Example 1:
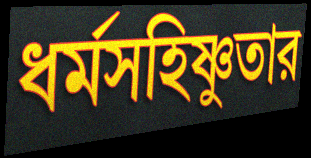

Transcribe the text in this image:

ধর্মসহিষ্ণুতার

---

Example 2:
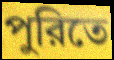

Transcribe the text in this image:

পুরিতে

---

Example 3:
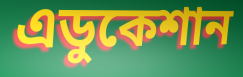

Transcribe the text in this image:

এডুকেশান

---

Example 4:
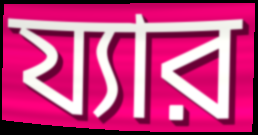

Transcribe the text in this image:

য্যার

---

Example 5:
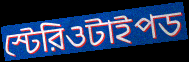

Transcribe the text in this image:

স্টেরিওটাইপড